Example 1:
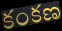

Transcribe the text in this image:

కంకణ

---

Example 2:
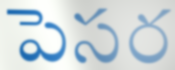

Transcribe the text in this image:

పెసర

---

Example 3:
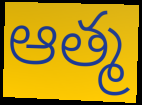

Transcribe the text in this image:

ఆత్మ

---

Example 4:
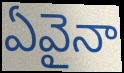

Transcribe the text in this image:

ఏవైనా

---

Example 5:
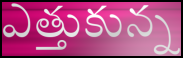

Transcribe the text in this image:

ఎత్తుకున్న